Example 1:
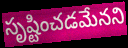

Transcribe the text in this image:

సృష్టించడమేనని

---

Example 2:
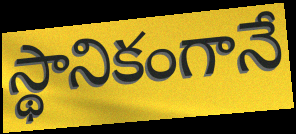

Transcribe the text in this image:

స్థానికంగానే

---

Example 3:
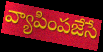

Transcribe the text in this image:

వ్యాపింపజేసే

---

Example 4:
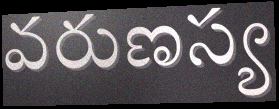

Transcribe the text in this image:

వరుణస్య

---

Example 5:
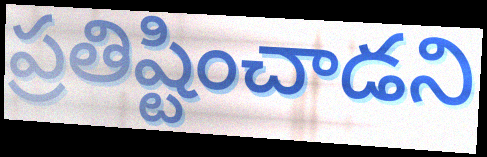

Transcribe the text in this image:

ప్రతిష్టించాడని